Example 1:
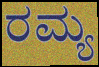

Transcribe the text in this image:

ರಮ್ಯ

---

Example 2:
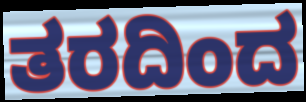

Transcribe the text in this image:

ತರದಿಂದ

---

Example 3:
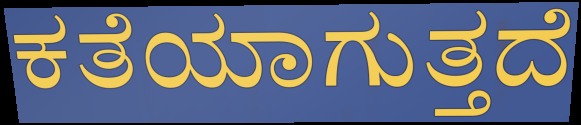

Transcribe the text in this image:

ಕತೆಯಾಗುತ್ತದೆ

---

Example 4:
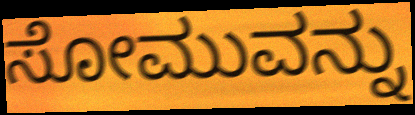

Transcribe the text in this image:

ಸೋಮುವನ್ನು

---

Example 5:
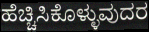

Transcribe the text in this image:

ಹೆಚ್ಚಿಸಿಕೊಳ್ಳುವುದರ